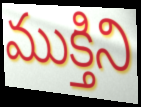
ముక్తిని